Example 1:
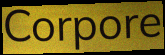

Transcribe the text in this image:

Corpore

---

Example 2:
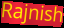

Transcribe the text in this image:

Rajnish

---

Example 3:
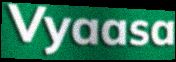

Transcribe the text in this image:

Vyaasa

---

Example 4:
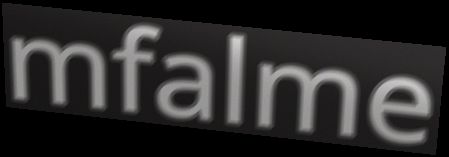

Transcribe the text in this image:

mfalme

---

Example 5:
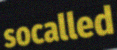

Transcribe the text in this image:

socalled